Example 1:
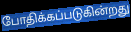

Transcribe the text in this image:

போதிக்கப்படுகின்றது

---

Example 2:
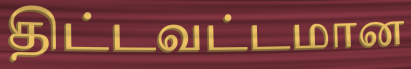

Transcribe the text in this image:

திட்டவட்டமான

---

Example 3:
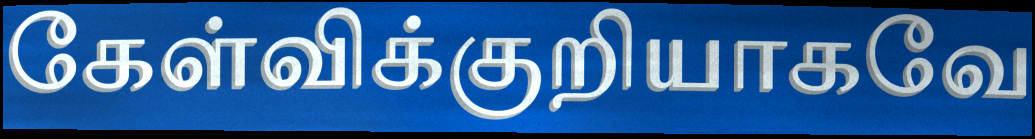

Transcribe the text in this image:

கேள்விக்குறியாகவே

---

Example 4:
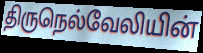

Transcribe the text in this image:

திருநெல்வேலியின்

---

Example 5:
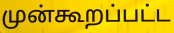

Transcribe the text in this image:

முன்கூறப்பட்ட